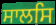
ਸਾਲਸਿ